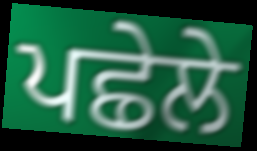
ਪਛੇਲੇ